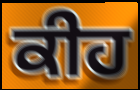
ਕੀਹ